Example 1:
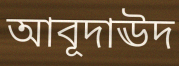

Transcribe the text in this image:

আবূদাঊদ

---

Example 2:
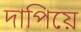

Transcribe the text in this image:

দাপিয়ে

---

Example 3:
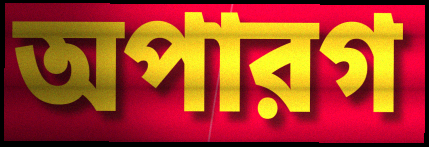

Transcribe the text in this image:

অপারগ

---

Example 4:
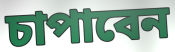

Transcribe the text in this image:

চাপাবেন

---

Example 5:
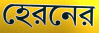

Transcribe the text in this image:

হেরনের